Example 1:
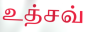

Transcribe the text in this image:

உத்சவ்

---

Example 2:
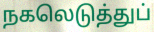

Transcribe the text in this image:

நகலெடுத்துப்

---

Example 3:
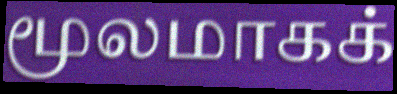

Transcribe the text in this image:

மூலமாகக்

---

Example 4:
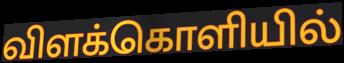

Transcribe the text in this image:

விளக்கொளியில்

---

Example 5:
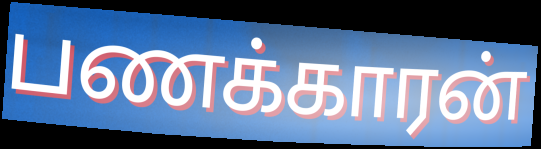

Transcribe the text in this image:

பணக்காரன்